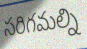
సరిగమల్ని